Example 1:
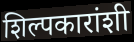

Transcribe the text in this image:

शिल्पकारांशी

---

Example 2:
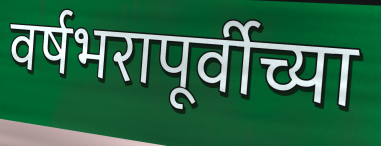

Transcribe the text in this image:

वर्षभरापूर्वीच्या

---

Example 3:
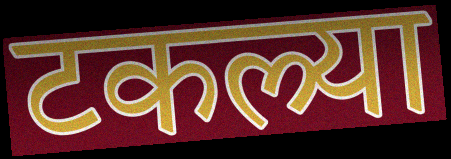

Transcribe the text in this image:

टकल्या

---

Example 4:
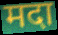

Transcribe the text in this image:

मदा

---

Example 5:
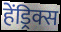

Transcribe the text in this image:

हेंड्रिक्स